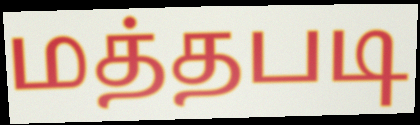
மத்தபடி